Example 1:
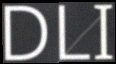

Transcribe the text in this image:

DLI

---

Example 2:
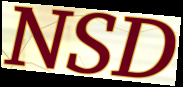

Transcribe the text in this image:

NSD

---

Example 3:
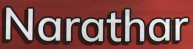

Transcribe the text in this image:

Narathar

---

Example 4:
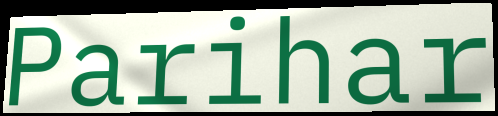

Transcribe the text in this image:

Parihar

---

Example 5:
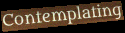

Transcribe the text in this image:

Contemplating